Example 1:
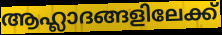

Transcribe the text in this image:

ആഹ്ലാദങ്ങളിലേക്ക്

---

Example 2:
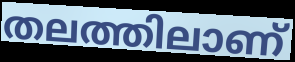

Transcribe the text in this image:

തലത്തിലാണ്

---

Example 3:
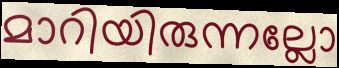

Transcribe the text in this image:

മാറിയിരുന്നല്ലോ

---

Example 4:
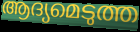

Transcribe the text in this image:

ആദ്യമെടുത്ത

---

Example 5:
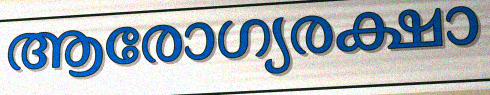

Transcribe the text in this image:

ആരോഗ്യരക്ഷാ